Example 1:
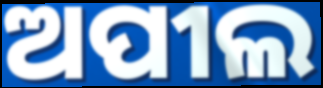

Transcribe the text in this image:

ଅପୀଲ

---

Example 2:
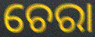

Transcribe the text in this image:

ଚେରା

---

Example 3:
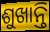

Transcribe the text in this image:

ଶୁଖାନ୍ତି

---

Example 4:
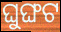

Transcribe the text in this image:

ଘୁଙ୍ଘଟ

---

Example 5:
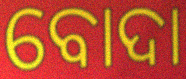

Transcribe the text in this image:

ବୋଦା